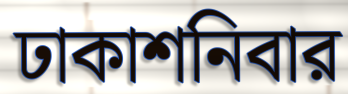
ঢাকাশনিবার